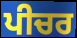
ਪੀਚਰ